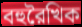
বহুরৈখিক